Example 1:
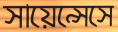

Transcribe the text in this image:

সায়েন্সেসে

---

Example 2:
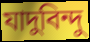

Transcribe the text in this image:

যাদুবিন্দু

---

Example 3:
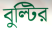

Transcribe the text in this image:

বুল্টির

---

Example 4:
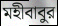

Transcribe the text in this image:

মহীবাবুর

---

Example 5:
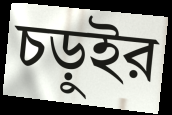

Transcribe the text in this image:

চড়ুইর